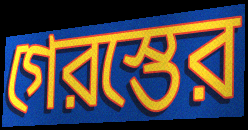
গেরস্তের